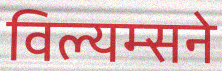
विल्यम्सने